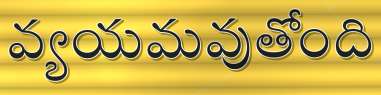
వ్యయమవుతోంది